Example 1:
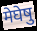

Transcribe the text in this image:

मेघेषु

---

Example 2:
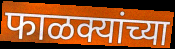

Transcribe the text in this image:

फाळक्यांच्या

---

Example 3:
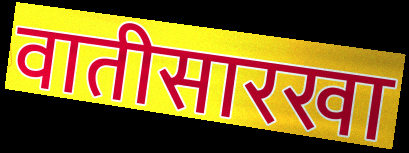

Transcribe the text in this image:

वातीसारखा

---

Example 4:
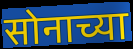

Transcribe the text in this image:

सोनाच्या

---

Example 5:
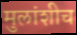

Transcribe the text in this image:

मुलांशीच